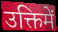
उक्तिमें